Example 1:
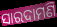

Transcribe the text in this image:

ସାରଦାମଣି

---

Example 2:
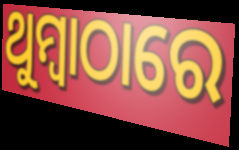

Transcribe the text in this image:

ଥୁମ୍ବାଠାରେ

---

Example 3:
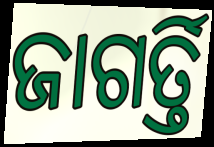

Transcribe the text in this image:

ଜାଗର୍ତ୍ତି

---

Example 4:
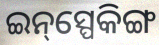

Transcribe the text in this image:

ଇନ୍‌ସ୍ପେକିଙ୍ଗ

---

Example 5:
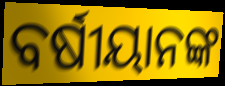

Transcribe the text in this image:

ବର୍ଷୀୟାନଙ୍କ